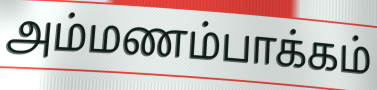
அம்மணம்பாக்கம்